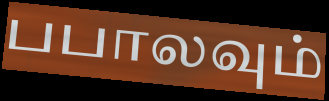
பபாலவும்